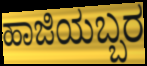
ಹಾಜಿಯಬ್ಬರ